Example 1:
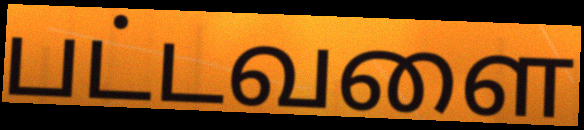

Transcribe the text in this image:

பட்டவளை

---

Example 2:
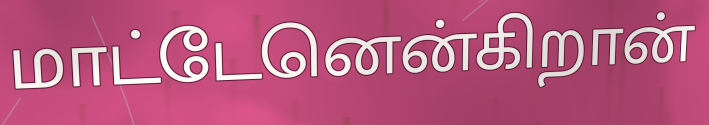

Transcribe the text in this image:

மாட்டேனென்கிறான்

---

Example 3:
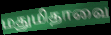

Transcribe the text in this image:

மதுமிதாவை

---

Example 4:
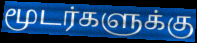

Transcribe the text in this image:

மூடர்களுக்கு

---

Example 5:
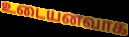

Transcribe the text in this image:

உடையனவாக